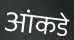
आंकडे